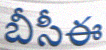
బీసీఈ